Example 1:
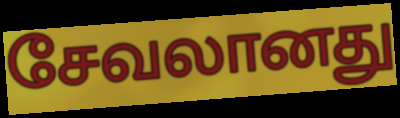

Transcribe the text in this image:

சேவலானது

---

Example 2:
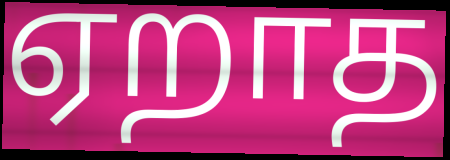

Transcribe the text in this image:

ஏறாத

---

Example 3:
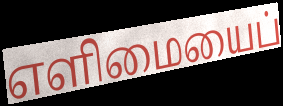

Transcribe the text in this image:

எளிமையைப்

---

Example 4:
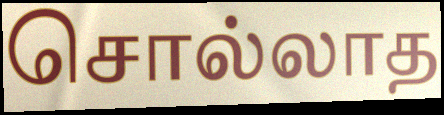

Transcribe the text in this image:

சொல்லாத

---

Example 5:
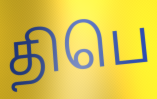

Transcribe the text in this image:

திபெ